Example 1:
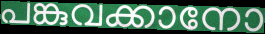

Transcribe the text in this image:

പങ്കുവക്കാനോ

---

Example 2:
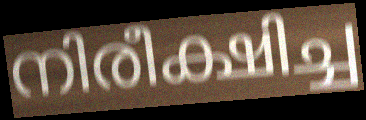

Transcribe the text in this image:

നിരീക്ഷിച്ച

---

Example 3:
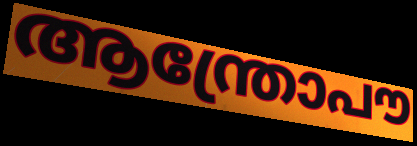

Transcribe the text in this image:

ആന്ത്രോപൗ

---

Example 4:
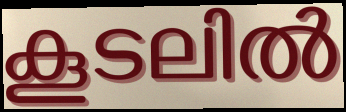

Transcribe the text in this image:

കൂടലിൽ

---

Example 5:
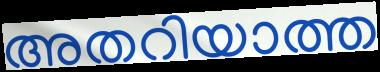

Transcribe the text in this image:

അതറിയാത്ത